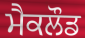
ਮੈਕਲੌਡ